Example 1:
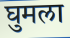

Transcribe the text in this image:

घुमला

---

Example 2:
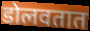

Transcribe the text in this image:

डोलवतात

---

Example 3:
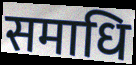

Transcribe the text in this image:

समाधि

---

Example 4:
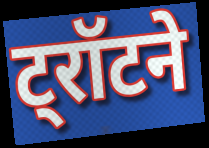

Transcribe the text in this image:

ट्रॉटने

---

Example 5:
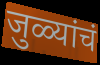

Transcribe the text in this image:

जुळ्यांचं